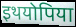
इथयोपिया